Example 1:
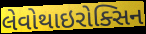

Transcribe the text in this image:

લેવોથાઇરોક્સિન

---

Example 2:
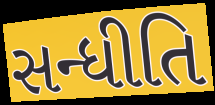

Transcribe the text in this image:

સન્ધીતિ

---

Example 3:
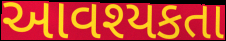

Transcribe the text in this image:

આવશ્યકતા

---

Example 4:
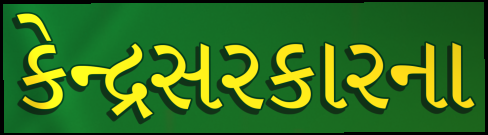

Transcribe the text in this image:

કેન્દ્રસરકારના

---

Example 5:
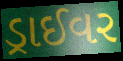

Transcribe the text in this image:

ડ્રાઈવર